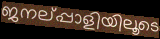
ജനല്പ്പാളിയിലൂടെ